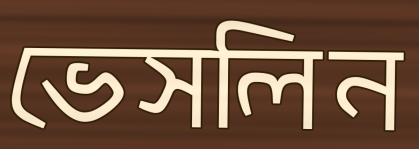
ভেসলিন